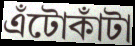
এঁটোকাঁটা